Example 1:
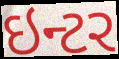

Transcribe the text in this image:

ઇન્ટર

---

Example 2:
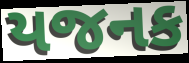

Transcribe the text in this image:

યજનક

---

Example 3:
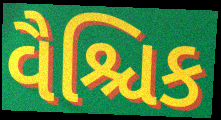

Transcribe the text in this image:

વૈશ્ચિક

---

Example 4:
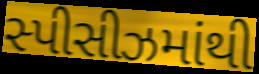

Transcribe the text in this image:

સ્પીસીઝમાંથી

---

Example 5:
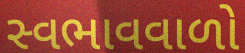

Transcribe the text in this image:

સ્વભાવવાળો